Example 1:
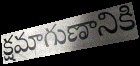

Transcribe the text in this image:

క్షమాగుణానికి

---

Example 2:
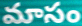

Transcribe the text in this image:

మాసం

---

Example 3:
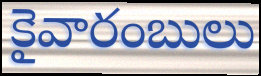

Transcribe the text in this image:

కైవారంబులు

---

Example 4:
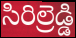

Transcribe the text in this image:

సిరిల్రెడ్డి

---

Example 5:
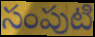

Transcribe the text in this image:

సంపుటి